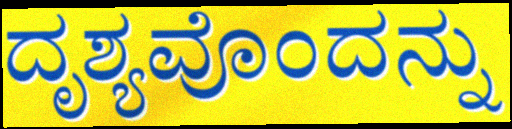
ದೃಶ್ಯವೊಂದನ್ನು